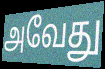
அவேது